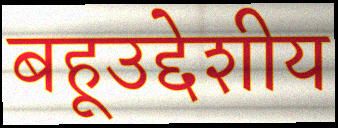
बहूउद्देशीय